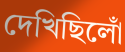
দেখিছিলোঁ